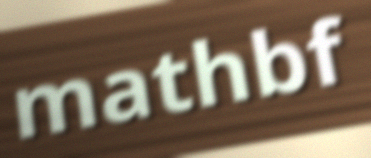
mathbf